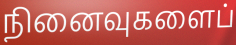
நினைவுகளைப்